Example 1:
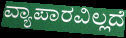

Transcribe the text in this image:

ವ್ಯಾಪಾರವಿಲ್ಲದೆ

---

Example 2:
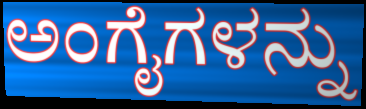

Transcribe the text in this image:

ಅಂಗೈಗಳನ್ನು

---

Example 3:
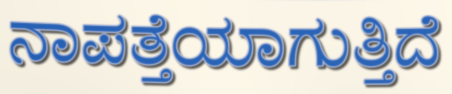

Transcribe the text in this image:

ನಾಪತ್ತೆಯಾಗುತ್ತಿದೆ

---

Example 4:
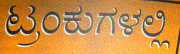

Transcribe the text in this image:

ಟ್ರಂಕುಗಳಲ್ಲಿ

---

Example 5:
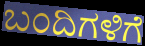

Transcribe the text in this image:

ಬಂದಿಗಳಿಗೆ